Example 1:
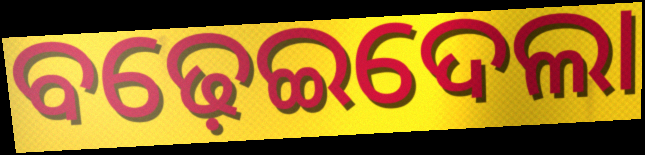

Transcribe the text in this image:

ବଢ଼େଇଦେଲା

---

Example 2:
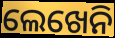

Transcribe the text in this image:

ଲେଖେନି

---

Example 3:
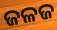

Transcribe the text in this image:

ଜଳଜ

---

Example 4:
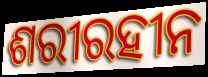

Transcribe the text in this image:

ଶରୀରହୀନ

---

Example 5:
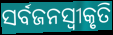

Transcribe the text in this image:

ସର୍ବଜନସ୍ୱୀକୃତି